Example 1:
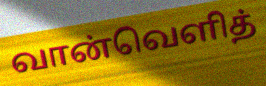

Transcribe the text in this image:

வான்வெளித்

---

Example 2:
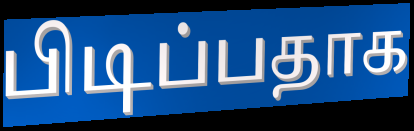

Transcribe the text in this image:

பிடிப்பதாக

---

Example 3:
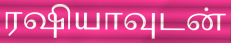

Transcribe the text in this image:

ரஷியாவுடன்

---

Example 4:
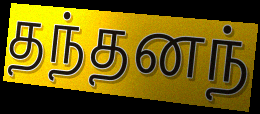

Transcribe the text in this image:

தந்தனந்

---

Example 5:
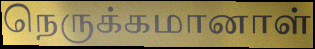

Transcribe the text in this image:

நெருக்கமானாள்